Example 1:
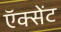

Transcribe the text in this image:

ऍक्सेंट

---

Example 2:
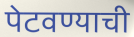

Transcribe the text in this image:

पेटवण्याची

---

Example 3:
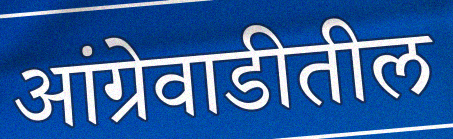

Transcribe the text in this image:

आंग्रेवाडीतील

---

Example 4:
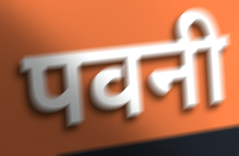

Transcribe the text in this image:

पवनी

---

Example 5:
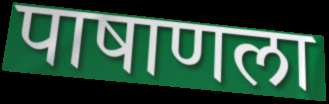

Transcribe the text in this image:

पाषाणला